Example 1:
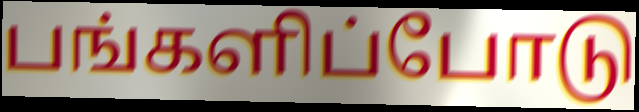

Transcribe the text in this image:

பங்களிப்போடு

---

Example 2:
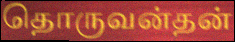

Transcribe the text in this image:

தொருவன்தன்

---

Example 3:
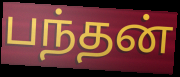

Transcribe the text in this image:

பந்தன்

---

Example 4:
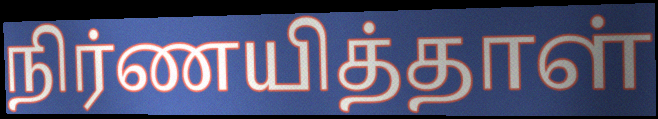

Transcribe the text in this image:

நிர்ணயித்தாள்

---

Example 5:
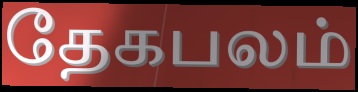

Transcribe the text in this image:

தேகபலம்